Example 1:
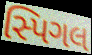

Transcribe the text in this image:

સ્પિગલ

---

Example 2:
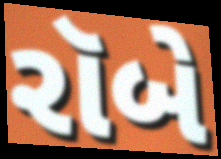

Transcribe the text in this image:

રૉબે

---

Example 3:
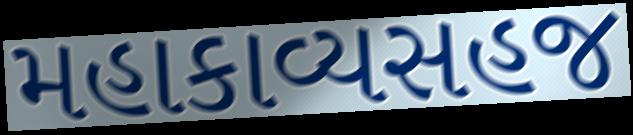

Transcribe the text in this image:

મહાકાવ્યસહજ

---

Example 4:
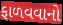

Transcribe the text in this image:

ફાળવવાનો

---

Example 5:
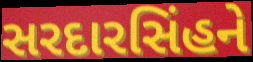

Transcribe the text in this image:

સરદારસિંહને